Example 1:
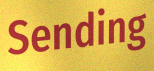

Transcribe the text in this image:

Sending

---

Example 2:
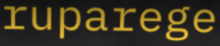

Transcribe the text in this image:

ruparege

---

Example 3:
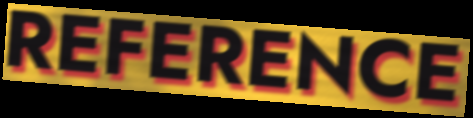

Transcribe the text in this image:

REFERENCE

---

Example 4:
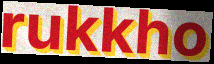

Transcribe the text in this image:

rukkho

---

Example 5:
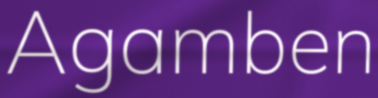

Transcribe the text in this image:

Agamben